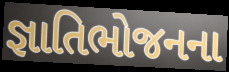
જ્ઞાતિભોજનના